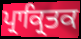
ਪ੍ਰਾਕ੍ਰਿਤਕ